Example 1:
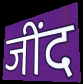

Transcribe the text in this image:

जींद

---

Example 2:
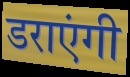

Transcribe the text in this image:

डराएंगी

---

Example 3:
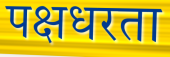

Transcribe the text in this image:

पक्षधरता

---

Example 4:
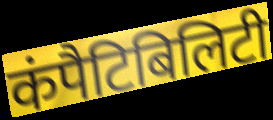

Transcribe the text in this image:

कंपैटिबिलिटी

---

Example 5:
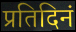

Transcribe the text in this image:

प्रतिदिनं